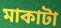
মাকাটা